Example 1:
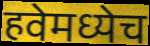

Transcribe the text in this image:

हवेमध्येच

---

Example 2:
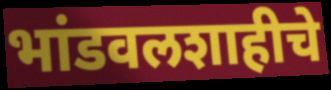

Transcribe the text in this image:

भांडवलशाहीचे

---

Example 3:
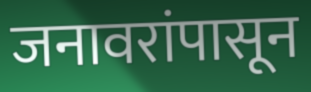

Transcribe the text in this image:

जनावरांपासून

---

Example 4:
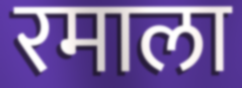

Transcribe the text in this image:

रमाला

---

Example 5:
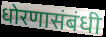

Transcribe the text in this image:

धोरणासंबंधी